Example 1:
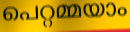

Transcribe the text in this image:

പെറ്റമ്മയാം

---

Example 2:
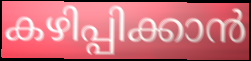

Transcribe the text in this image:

കഴിപ്പിക്കാൻ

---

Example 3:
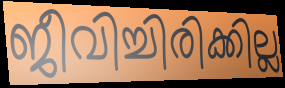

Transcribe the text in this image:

ജീവിച്ചിരിക്കില്ല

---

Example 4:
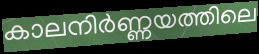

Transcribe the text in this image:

കാലനിർണ്ണയത്തിലെ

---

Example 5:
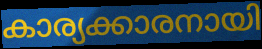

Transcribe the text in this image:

കാര്യക്കാരനായി